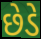
છેડે